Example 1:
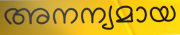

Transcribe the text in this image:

അനന്യമായ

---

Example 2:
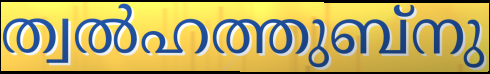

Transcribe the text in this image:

ത്വൽഹത്തുബ്നു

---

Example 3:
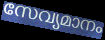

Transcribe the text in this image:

സേവ്യമാനം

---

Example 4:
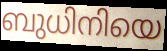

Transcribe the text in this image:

ബുധിനിയെ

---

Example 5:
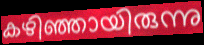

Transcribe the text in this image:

കഴിഞ്ഞായിരുന്നു